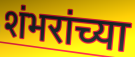
शंभरांच्या